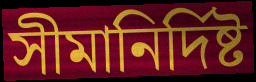
সীমানির্দিষ্ট